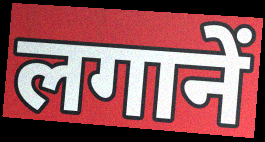
लगानें